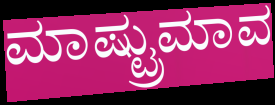
ಮಾಷ್ಟ್ರುಮಾವ